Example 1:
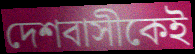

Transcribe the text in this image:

দেশবাসীকেই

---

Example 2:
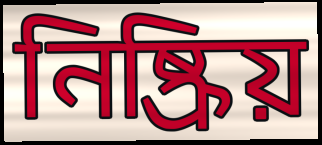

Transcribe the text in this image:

নিষ্ক্রিয়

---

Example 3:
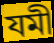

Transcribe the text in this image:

যমী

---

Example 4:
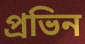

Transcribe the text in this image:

প্রভিন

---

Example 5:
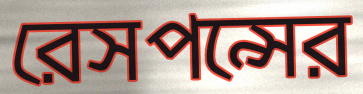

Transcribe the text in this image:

রেসপন্সের